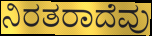
ನಿರತರಾದೆವು